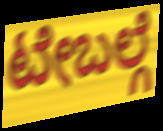
ಟೇಬಲ್ಗೆ